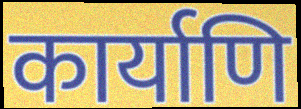
कार्याणि